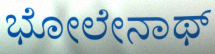
ಭೋಲೇನಾಥ್